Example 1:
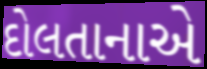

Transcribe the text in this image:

દોલતાનાએ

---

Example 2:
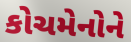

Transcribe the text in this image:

કોચમેનોને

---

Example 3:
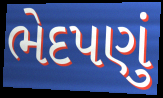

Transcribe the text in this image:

ભેદપણું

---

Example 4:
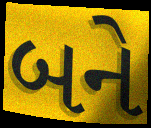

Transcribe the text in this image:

બને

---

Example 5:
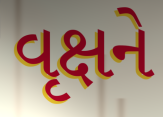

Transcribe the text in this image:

વૃક્ષને